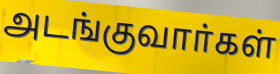
அடங்குவார்கள்